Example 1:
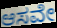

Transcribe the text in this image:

ಆಸವೇ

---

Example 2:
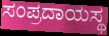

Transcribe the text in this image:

ಸಂಪ್ರದಾಯಸ್ಥ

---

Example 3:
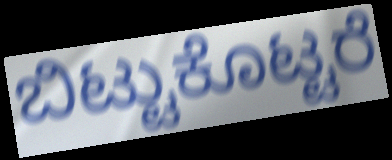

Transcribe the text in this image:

ಬಿಟ್ಟುಕೊಟ್ಟರೆ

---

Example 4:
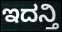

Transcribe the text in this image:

ಇದನ್ತಿ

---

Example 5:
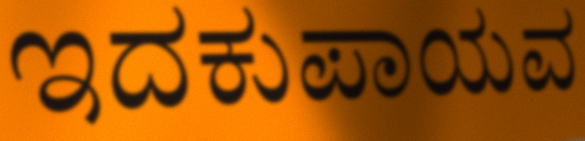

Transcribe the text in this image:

ಇದಕುಪಾಯವ